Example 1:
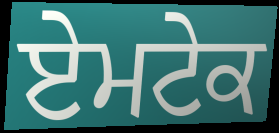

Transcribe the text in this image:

ਏਮਟੇਕ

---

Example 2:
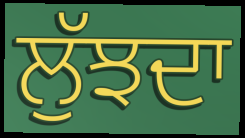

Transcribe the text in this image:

ਲੁੱਝਦਾ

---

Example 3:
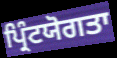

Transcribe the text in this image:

ਪ੍ਰਿੰਟਯੋਗਤਾ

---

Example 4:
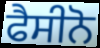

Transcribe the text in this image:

ਫੈਸੀਨੋ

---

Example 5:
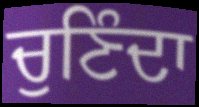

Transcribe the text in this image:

ਚੁਣਿੰਦਾ